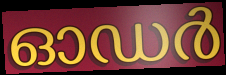
ഓഡർ